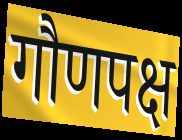
गौणपक्ष